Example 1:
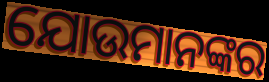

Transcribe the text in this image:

ଯୋଉମାନଙ୍କର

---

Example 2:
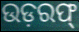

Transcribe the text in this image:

ଉଡ଼ରଫ୍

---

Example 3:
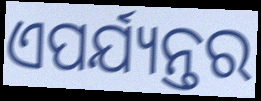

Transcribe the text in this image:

ଏପର୍ଯ୍ୟନ୍ତର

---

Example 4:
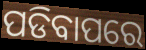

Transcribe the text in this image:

ପଡିବାପରେ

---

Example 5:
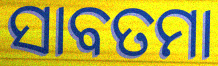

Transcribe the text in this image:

ସାବତମା